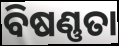
ବିଷଣ୍ଣତା